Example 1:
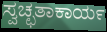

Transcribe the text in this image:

ಸ್ವಚ್ಛತಾಕಾರ್ಯ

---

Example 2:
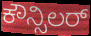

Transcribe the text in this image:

ಕೌನ್ಸಿಲರ್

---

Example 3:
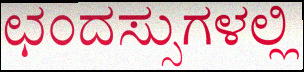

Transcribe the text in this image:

ಛಂದಸ್ಸುಗಳಲ್ಲಿ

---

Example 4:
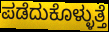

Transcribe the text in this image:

ಪಡೆದುಕೊಳ್ಳುತ್ತೆ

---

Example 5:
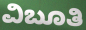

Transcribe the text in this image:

ವಿಬೂತಿ